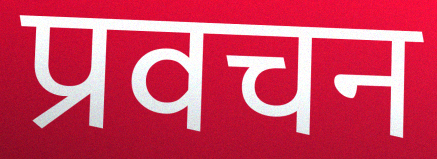
प्रवचन